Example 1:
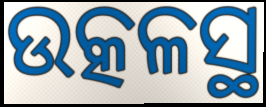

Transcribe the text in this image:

ଉତ୍କଳସ୍ଥ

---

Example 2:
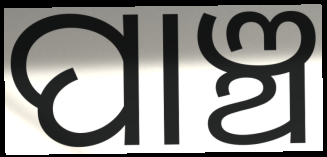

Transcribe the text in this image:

ପାଞ୍ଚ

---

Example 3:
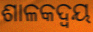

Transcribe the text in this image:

ଶାଳକଦ୍ୱୟ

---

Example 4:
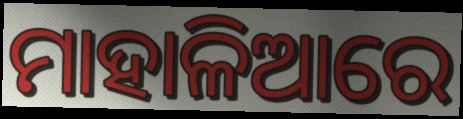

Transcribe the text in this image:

ମାହାଳିଆରେ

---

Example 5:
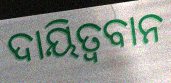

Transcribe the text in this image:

ଦାୟିତ୍ଵବାନ